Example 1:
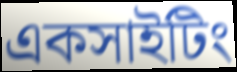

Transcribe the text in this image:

একসাইটিং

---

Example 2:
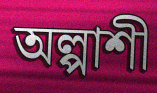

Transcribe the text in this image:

অল্পাশী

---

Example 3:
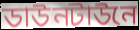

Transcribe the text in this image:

ডাউনটাউনে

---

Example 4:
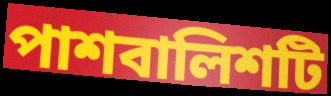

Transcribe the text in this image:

পাশবালিশটি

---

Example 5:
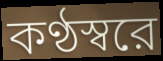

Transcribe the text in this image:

কণ্ঠস্বরে